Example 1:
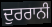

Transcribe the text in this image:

ਦੁਰਰਾਨੀ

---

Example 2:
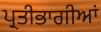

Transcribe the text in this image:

ਪ੍ਰਤੀਭਾਗੀਆਂ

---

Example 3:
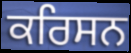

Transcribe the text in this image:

ਕਰਿਸਨ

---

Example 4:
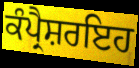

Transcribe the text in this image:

ਕੰਪ੍ਰੈਸ਼ਰਇਹ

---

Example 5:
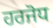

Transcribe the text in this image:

ਹਰਜੋਧ